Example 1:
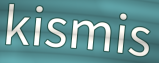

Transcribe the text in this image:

kismis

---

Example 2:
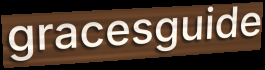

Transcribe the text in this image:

gracesguide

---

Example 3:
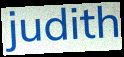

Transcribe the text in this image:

judith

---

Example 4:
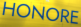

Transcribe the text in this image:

HONORE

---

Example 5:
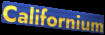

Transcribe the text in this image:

Californium